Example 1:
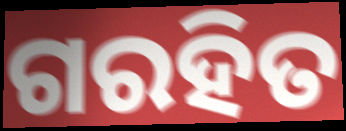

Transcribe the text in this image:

ଗରହିତ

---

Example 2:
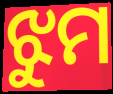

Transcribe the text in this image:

ଝୁମ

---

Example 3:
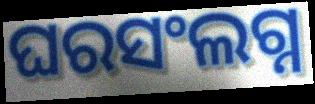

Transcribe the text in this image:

ଘରସଂଲଗ୍ନ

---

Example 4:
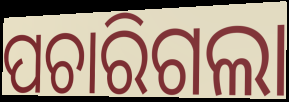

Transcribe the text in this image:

ପଚାରିଗଲା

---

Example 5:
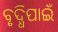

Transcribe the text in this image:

ବୃଦ୍ଧିପାଇଁ